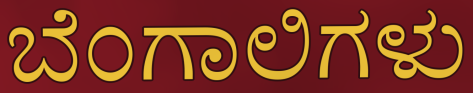
ಬೆಂಗಾಲಿಗಳು